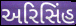
અરિસિંહ